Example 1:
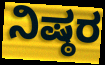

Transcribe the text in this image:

ನಿಷ್ಠರ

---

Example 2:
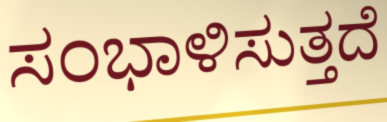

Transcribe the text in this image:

ಸಂಭಾಳಿಸುತ್ತದೆ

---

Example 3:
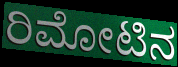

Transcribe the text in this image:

ರಿಮೋಟಿನ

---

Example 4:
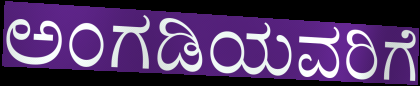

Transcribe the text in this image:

ಅಂಗಡಿಯವರಿಗೆ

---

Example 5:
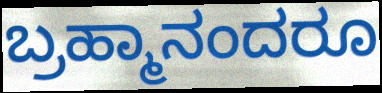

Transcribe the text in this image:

ಬ್ರಹ್ಮಾನಂದರೂ